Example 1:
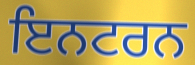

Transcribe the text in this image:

ਇਨਟਰਨ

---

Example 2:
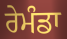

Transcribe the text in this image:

ਰੇਮੰਡਾ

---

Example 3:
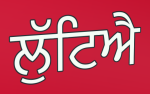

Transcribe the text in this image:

ਲੁੱਟਿਐ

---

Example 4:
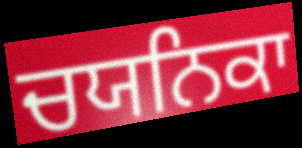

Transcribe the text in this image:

ਚਯਨਿਕਾ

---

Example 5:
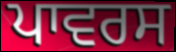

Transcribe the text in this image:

ਪਾਵਰਸ